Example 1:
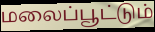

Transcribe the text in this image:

மலைப்பூட்டும்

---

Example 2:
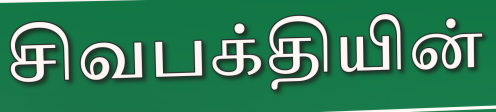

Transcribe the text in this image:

சிவபக்தியின்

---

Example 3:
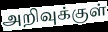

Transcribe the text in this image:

அறிவுக்குள்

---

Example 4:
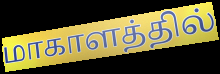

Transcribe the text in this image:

மாகாளத்தில்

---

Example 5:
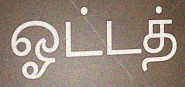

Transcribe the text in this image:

ஓட்டத்